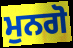
ਮੁਨਗੋ